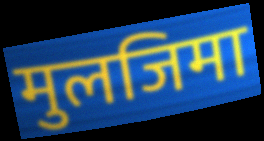
मुलजिमा